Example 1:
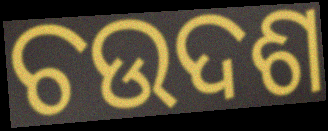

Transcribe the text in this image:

ଚଉଦଶ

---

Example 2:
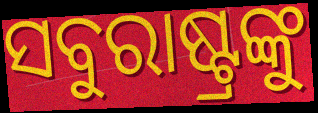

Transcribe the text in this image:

ସବୁରାଷ୍ଟ୍ରଙ୍କୁ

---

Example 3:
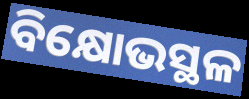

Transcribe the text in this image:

ବିକ୍ଷୋଭସ୍ଥଳ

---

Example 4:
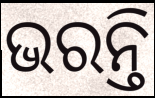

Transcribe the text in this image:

ଭରନ୍ତି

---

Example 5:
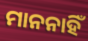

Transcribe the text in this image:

ମାନନାହିଁ